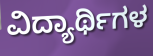
ವಿದ್ಯಾರ್ಥಿಗಳ